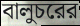
বালুচরের